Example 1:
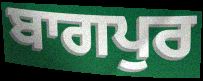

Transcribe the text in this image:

ਬਾਗਪੁਰ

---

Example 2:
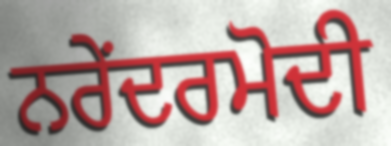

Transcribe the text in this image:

ਨਰੇਂਦਰਮੋਦੀ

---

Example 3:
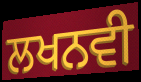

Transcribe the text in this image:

ਲਖਨਵੀ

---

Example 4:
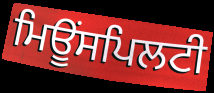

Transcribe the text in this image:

ਮਿਊਂਸਪਿਲਟੀ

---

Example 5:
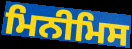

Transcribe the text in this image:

ਮਿਨੀਮਿਸ